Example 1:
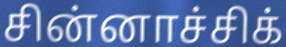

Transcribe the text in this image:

சின்னாச்சிக்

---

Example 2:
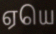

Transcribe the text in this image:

ஏயெ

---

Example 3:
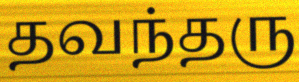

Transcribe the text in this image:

தவந்தரு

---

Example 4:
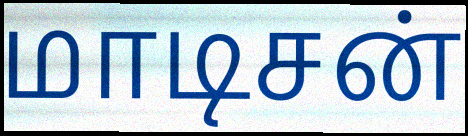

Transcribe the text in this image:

மாடிசன்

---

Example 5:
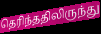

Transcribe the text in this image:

தெரிந்ததிலிருந்து